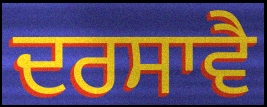
ਦਰਸਾਵੈ